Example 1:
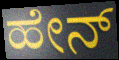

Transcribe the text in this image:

ಹೇನ್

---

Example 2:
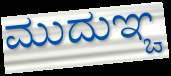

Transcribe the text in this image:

ಮುದುಞ್ಚ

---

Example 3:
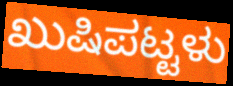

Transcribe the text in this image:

ಖುಷಿಪಟ್ಟಳು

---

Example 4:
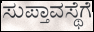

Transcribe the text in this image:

ಸುಪ್ತಾವಸ್ಥೆಗೆ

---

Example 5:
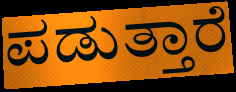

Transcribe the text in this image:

ಪಡುತ್ತಾರೆ